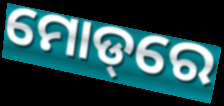
ମୋଡ୍‌ରେ